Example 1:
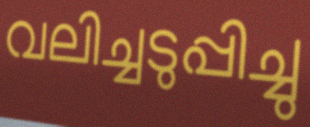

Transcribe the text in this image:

വലിച്ചടുപ്പിച്ചു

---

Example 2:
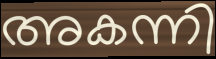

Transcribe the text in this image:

അകന്നി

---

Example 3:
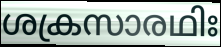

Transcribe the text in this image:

ശക്രസാരഥിഃ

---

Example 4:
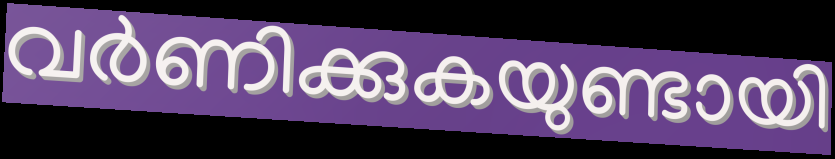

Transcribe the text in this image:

വർണിക്കുകയുണ്ടായി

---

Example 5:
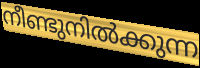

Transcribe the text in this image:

നീണ്ടുനിൽക്കുന്ന